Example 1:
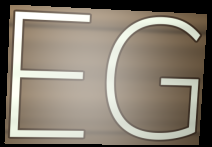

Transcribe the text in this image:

EG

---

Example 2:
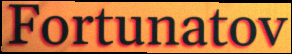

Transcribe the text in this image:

Fortunatov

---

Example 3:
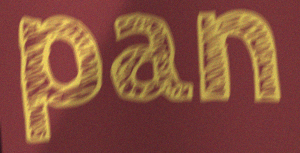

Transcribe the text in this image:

pan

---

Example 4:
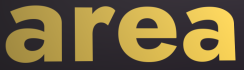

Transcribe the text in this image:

area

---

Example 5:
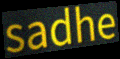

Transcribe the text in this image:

sadhe